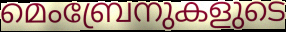
മെംബ്രേനുകളുടെ